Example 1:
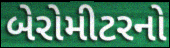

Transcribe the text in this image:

બેરોમીટરનો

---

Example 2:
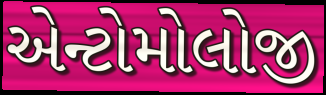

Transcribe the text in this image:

એન્ટોમોલોજી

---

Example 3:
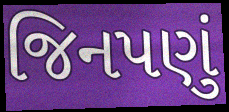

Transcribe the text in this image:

જિનપણું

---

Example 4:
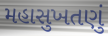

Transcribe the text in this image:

મહાસુખતણું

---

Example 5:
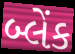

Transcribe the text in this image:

બ્લેંક